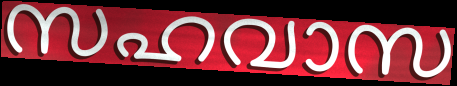
സഹവാസ